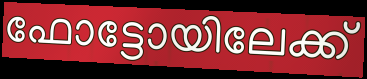
ഫോട്ടോയിലേക്ക്